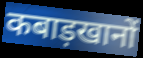
कबाड़खानों